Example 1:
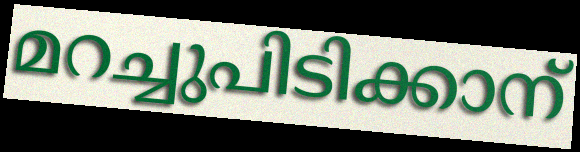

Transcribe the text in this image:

മറച്ചുപിടിക്കാന്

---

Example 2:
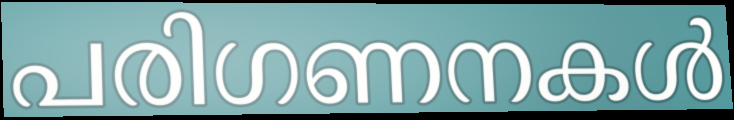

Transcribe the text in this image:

പരിഗണനകൾ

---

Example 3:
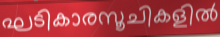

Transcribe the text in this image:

ഘടികാരസൂചികളിൽ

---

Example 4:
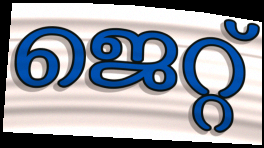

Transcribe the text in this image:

ജെറ്റ്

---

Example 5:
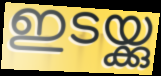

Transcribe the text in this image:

ഇടയ്ക്കു